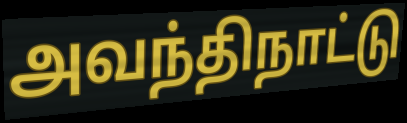
அவந்திநாட்டு